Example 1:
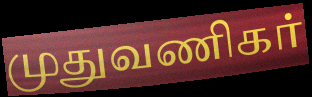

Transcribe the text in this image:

முதுவணிகர்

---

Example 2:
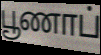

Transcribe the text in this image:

பூணாப்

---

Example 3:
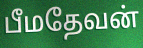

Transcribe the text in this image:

பீமதேவன்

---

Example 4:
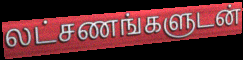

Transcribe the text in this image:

லட்சணங்களுடன்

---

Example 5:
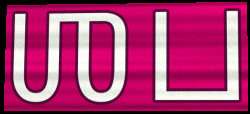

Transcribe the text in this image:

ஶப